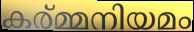
കര്മ്മനിയമം